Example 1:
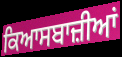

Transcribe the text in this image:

ਕਿਆਸਬਾਜ਼ੀਆਂ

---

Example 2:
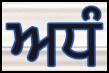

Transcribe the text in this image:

ਅਧੰ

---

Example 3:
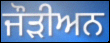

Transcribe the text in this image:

ਜੌੜੀਅਨ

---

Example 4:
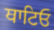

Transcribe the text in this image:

ਥਾਟਿਓ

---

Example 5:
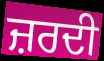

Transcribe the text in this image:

ਜ਼ਰਦੀ